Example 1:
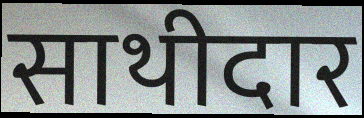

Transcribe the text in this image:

साथीदार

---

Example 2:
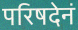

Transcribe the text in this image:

परिषदेनं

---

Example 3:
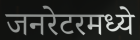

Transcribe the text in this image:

जनरेटरमध्ये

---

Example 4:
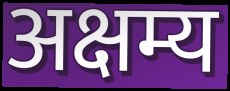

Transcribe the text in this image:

अक्षम्य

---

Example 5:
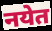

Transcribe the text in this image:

नयेत